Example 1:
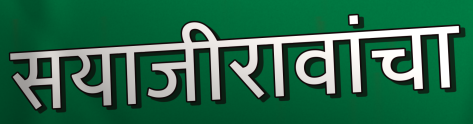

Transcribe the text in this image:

सयाजीरावांचा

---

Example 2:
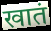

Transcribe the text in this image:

खातं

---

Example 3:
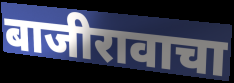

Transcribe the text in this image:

बाजीरावाचा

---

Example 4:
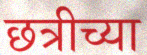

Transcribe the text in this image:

छत्रीच्या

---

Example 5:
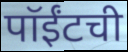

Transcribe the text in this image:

पॉईंटची